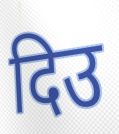
दिउ